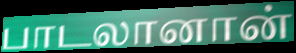
பாடலானான்